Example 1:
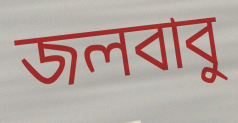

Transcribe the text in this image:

জলবাবু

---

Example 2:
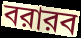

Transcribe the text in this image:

বরারব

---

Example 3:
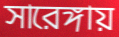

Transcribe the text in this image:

সারেঙ্গায়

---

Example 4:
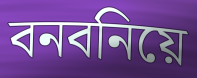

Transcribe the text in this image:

বনবনিয়ে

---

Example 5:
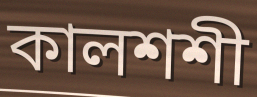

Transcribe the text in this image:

কালশশী